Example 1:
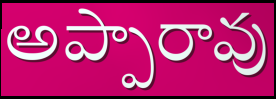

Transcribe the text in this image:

అప్పారావు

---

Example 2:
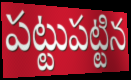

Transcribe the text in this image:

పట్టుపట్టిన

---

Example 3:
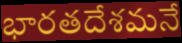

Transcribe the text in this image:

భారతదేశమనే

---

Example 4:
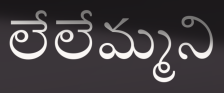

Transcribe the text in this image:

లేలేమ్మని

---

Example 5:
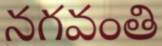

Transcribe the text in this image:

నగవంతి